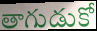
తాగుడుకో